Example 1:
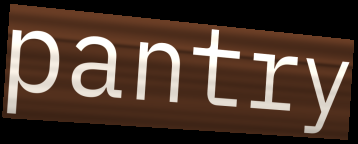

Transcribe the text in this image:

pantry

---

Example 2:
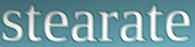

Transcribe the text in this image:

stearate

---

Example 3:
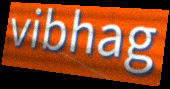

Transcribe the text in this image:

vibhag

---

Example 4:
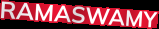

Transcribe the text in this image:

RAMASWAMY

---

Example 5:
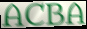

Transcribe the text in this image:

ACBA